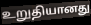
உறுதியானது